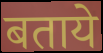
बताये